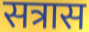
सत्रास